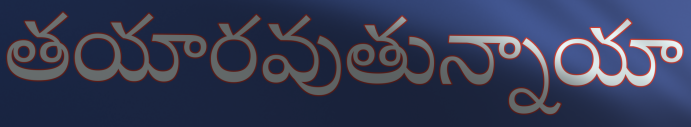
తయారవుతున్నాయా